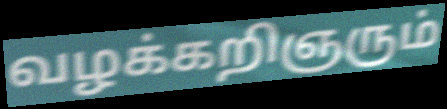
வழக்கறிஞரும்